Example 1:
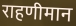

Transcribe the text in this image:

राहणीमान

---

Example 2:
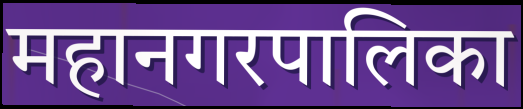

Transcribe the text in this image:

महानगरपालिका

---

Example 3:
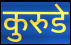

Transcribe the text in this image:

कुरुडे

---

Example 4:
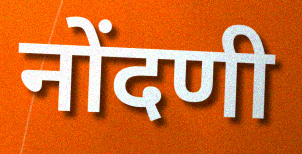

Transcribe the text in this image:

नोंदणी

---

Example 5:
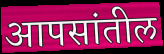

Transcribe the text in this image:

आपसांतील